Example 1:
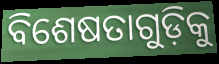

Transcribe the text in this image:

ବିଶେଷତାଗୁଡ଼ିକୁ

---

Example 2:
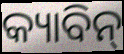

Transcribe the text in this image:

କ୍ୟାବିନ୍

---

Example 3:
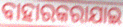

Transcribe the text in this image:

ବାହାରକରାଯାଇ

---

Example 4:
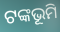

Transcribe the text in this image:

ଟଙ୍କଭୂମି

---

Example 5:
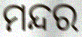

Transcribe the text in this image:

ମନ୍ଦର